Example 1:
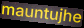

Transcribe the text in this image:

mauntujhe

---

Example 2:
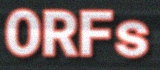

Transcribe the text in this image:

ORFs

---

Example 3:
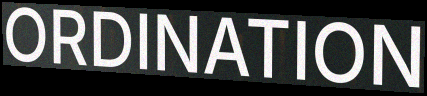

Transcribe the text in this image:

ORDINATION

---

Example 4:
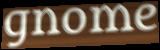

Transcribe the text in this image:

gnome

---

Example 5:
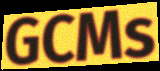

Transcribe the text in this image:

GCMs